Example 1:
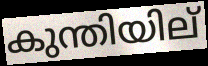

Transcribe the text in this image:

കുന്തിയില്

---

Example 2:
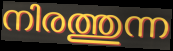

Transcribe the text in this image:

നിരത്തുന്ന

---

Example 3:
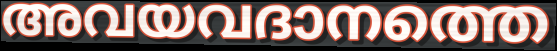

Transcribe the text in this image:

അവയവദാനത്തെ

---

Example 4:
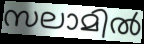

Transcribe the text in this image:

സലാമിൽ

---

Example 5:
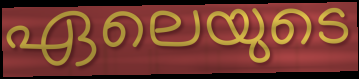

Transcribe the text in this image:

ഏലെയുടെ